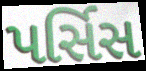
પર્સિસ